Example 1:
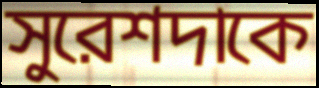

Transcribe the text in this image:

সুরেশদাকে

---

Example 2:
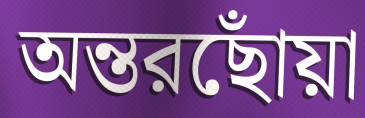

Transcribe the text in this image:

অন্তরছোঁয়া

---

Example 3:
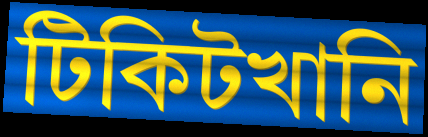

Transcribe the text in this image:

টিকিটখানি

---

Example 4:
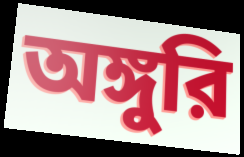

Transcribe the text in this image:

অঙ্গুরি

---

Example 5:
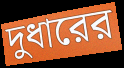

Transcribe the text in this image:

দুধারের